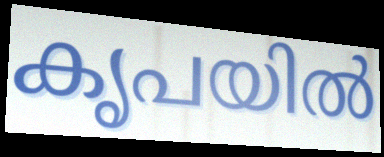
കൃപയിൽ